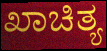
ಖಾಚಿತ್ಯ